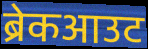
ब्रेकआउट